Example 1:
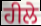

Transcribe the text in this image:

ਹੀਲੇ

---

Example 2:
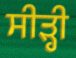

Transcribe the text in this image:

ਸੀੜ੍ਹੀ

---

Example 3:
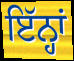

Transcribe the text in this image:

ਇੱਨ੍ਹਾਂ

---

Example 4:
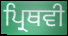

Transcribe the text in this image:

ਪ੍ਰਿਥਵੀ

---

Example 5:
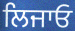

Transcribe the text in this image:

ਲਿਜਾਓ